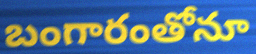
బంగారంతోనూ